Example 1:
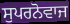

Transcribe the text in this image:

ਸੁਪਰਨੋਵਾਜ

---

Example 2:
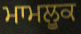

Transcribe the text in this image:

ਮਾਮਲੂਕ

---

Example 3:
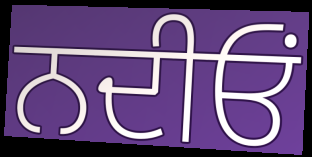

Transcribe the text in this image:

ਨਦੀਓਂ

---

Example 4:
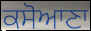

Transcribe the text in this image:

ਕਸੋਆਣਾ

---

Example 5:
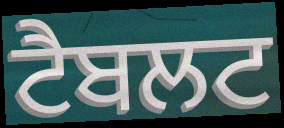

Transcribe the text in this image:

ਟੈਬਲਟ